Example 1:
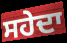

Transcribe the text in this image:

ਸਹੇਦਾ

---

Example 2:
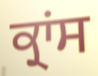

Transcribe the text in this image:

ਕ੍ਰਾਂਸ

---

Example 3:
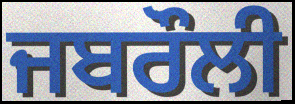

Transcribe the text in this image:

ਜਬਰੌਲੀ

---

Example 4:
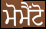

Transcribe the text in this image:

ਮੋਮੈਂਟੋ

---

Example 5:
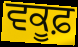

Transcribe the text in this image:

ਵਕੂਫ਼